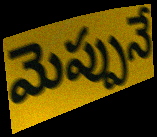
మెప్పునే